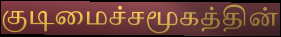
குடிமைச்சமூகத்தின்